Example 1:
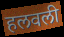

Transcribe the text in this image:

हलवली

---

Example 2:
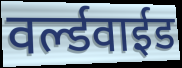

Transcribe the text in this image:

वर्ल्डवाईड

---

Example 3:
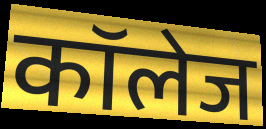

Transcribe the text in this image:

कॉलेज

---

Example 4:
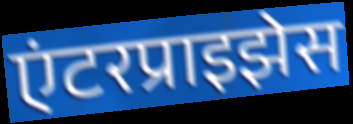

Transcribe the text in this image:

एंटरप्राइझेस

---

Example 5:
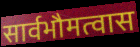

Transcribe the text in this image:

सार्वभौमत्वास